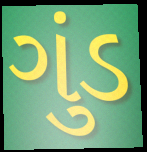
ગુંડ